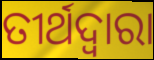
ତୀର୍ଥଦ୍ବାରା